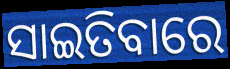
ସାଇତିବାରେ